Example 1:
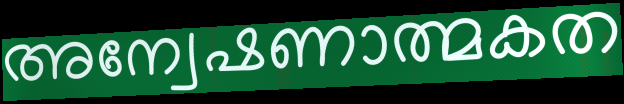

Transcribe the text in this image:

അന്വേഷണാത്മകത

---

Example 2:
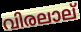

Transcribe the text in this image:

വിരലാല്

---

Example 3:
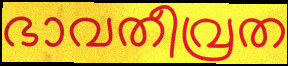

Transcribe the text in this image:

ഭാവതീവ്രത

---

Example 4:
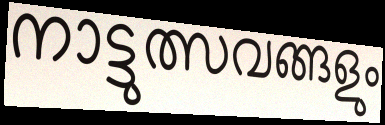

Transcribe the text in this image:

നാട്ടുത്സവങ്ങളും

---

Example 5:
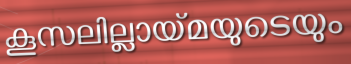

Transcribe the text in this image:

കൂസലില്ലായ്മയുടെയും